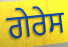
ਗੇਰੇਸ